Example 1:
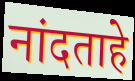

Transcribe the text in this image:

नांदताहे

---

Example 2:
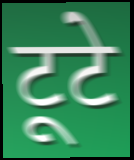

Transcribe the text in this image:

टूटे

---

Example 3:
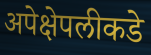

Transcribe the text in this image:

अपेक्षेपलीकडे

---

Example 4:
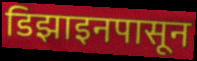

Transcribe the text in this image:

डिझाइनपासून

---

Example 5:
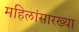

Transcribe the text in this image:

महिलांसारख्या